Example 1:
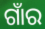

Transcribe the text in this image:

ଗାଁର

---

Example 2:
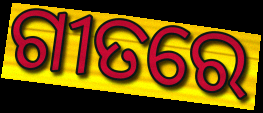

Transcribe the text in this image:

ଗୀତରେ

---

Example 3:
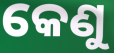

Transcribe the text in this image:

କେଣୁ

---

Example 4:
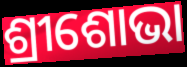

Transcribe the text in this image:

ଶ୍ରୀଶୋଭା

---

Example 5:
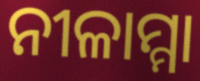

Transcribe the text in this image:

ନୀଳାମ୍ମା